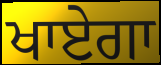
ਖਾਏਗਾ